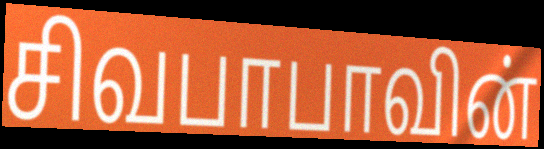
சிவபாபாவின்